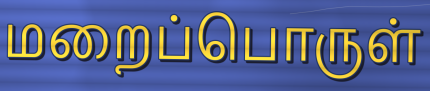
மறைப்பொருள்